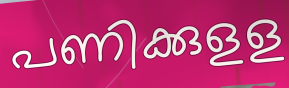
പണിക്കുളള